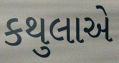
કથુલાએ